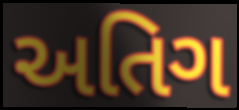
અતિગ